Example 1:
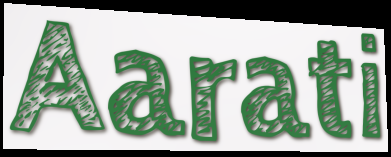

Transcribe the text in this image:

Aarati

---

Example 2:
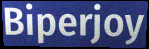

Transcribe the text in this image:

Biperjoy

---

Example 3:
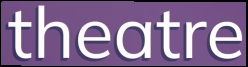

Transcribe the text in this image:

theatre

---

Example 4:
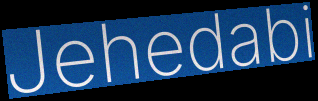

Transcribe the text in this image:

Jehedabi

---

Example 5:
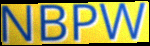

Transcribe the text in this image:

NBPW